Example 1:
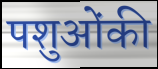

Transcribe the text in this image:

पशुओंकी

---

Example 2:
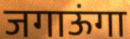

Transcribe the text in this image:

जगाऊंगा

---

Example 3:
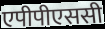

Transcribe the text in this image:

एपीपीएससी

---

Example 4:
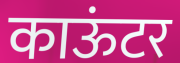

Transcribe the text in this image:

काऊंटर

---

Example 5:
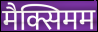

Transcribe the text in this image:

मैक्सिमम